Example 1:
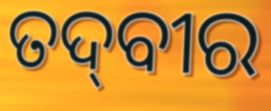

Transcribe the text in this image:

ତଦ୍‌ବୀର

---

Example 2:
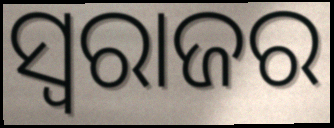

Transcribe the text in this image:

ସ୍ବରାଜର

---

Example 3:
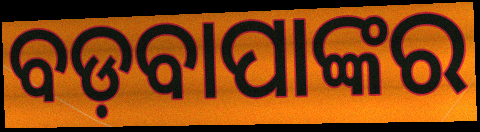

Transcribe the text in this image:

ବଡ଼ବାପାଙ୍କର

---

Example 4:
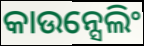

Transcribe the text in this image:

କାଉନ୍ସେଲିଂ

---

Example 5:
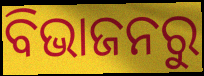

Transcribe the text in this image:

ବିଭାଜନରୁ